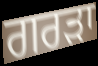
ਗਰੜਾ